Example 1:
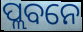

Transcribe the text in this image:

ପ୍ଲବନେ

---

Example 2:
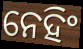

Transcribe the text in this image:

ନେହିଂ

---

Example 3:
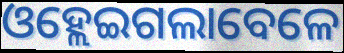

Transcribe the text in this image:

ଓହ୍ଲେଇଗଲାବେଳେ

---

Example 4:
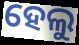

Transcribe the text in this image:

ହେଲୁ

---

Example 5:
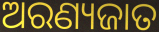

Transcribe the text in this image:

ଅରଣ୍ୟଜାତ